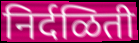
निर्दळिती